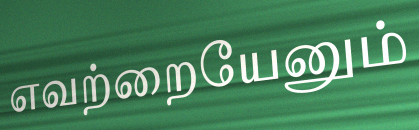
எவற்றையேனும்